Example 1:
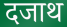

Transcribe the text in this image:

दजाथ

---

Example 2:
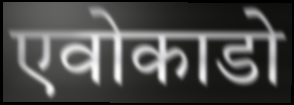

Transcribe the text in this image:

एवोकाडो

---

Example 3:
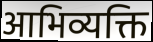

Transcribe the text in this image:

आभिव्यक्ति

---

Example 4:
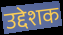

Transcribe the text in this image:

उद्देशक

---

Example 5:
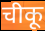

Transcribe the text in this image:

चीकू